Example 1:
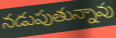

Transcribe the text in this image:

నడుపుతున్నావు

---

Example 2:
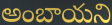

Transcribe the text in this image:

అంబాయని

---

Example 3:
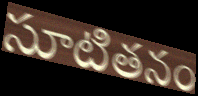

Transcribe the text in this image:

సూటితనం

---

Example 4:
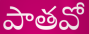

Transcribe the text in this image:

పాతవో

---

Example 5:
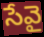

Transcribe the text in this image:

సేవై